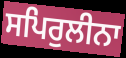
ਸਪਿਰੁਲੀਨਾ